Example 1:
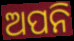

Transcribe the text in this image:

ଅପନି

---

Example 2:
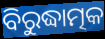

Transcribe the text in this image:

ବିରୁଦ୍ଧାତ୍ମକ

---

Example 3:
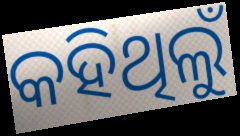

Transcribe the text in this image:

କହିଥିଲୁଁ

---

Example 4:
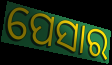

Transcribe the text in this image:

ପେସାର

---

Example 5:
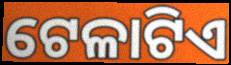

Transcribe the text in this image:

ଟେଳାଟିଏ